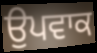
ਉਪਵਾਕ